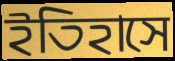
ইতিহাসে